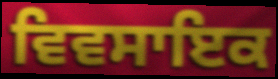
ਵਿਵਸਾਇਕ